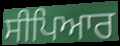
ਸੀਪਿਆਰ